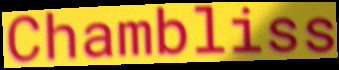
Chambliss